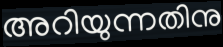
അറിയുന്നതിനു